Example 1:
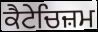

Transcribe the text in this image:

ਕੈਟੇਚਿਜ਼ਮ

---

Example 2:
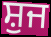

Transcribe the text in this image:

ਸ਼ੁਜ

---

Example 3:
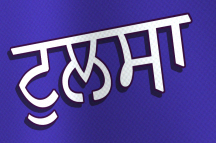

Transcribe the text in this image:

ਟੁਲਸਾ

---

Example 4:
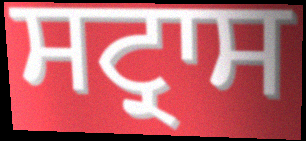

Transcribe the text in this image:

ਸਟ੍ਰਾਸ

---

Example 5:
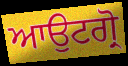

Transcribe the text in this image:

ਆਉਟਗ੍ਰੋ